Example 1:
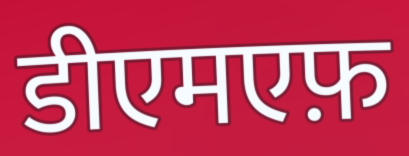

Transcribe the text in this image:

डीएमएफ़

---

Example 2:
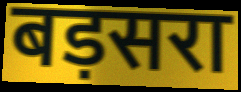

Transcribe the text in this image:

बड़सरा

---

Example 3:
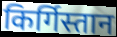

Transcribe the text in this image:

किर्गिस्तान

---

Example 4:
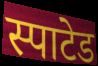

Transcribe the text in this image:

स्पाटेड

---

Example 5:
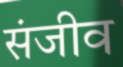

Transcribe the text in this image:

संजीव